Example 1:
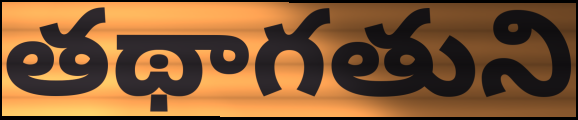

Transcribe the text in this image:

తథాగతుని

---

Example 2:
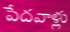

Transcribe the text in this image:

పేదవాళ్లు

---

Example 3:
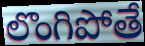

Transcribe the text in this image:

లొంగిపోతే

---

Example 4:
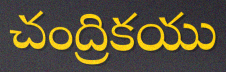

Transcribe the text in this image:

చంద్రికయు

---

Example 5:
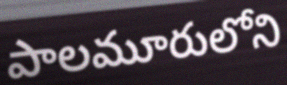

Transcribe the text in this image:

పాలమూరులోని